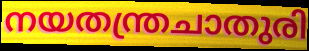
നയതന്ത്രചാതുരി